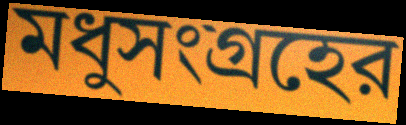
মধুসংগ্রহের